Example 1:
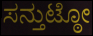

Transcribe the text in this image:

ಸನ್ತುಟ್ಠೋ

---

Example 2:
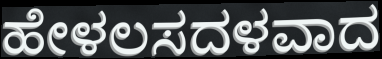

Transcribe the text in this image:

ಹೇಳಲಸದಳವಾದ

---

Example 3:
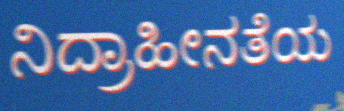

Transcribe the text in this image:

ನಿದ್ರಾಹೀನತೆಯ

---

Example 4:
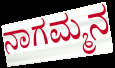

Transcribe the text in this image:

ನಾಗಮ್ಮನ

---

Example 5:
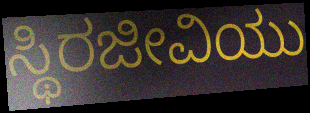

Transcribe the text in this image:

ಸ್ಥಿರಜೀವಿಯು